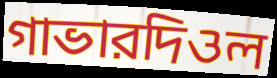
গাভারদিওল